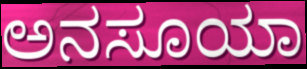
ಅನಸೂಯಾ